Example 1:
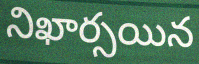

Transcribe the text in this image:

నిఖార్సయిన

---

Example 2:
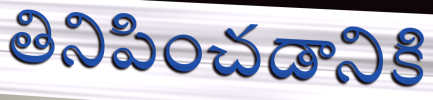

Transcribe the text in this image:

తినిపించడానికి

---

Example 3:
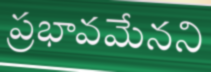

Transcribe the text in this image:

ప్రభావమేనని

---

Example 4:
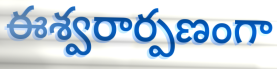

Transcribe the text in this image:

ఈశ్వరార్పణంగా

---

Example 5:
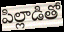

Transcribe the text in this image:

పిల్లాడితో